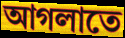
আগলাতে